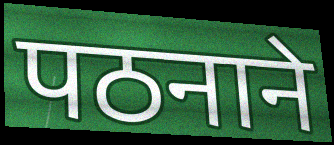
पठनाने